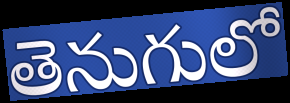
తెనుగులో